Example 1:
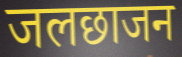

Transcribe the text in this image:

जलछाजन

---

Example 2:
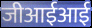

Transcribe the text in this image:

जीआईआई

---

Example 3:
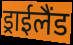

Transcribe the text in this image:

ड्राईलैंड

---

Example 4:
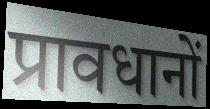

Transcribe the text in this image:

प्रावधानों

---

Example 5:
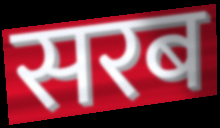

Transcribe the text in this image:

सरब